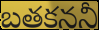
బతకననీ